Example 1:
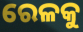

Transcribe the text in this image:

ରେଳକୁ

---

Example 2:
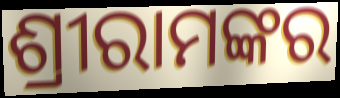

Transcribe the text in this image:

ଶ୍ରୀରାମଙ୍କର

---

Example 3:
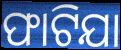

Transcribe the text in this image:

ଫାଟିଯା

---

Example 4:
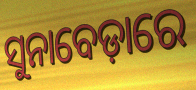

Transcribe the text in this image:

ସୁନାବେଡ଼ାରେ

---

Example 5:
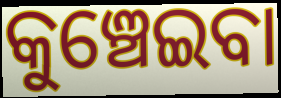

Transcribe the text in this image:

କୁଞ୍ଚେଇବା